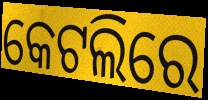
କେଟଲିରେ